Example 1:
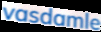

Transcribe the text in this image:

vasdamle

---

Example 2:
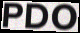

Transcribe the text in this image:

PDO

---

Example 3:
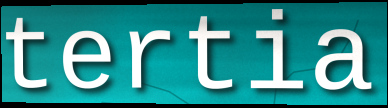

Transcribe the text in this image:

tertia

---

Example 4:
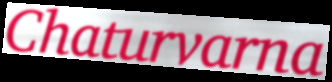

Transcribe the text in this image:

Chaturvarna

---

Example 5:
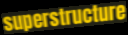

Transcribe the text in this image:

superstructure